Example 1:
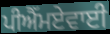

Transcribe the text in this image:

ਪੀਐੱਮਏਵਾਈ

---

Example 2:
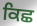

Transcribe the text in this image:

ਕਿਛ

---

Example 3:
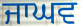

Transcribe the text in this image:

ਜਾਘਵ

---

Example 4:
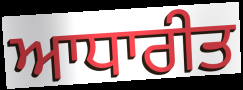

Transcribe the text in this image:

ਆਧਾਰੀਤ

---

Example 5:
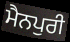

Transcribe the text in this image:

ਮੈਨਪੁਰੀ